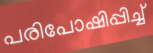
പരിപോഷിപ്പിച്ച്